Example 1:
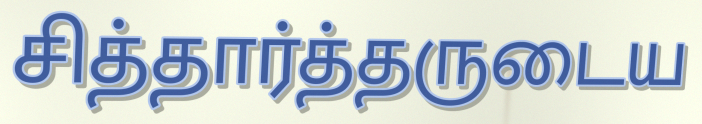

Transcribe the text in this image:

சித்தார்த்தருடைய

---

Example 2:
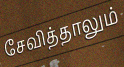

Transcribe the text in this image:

சேவித்தாலும்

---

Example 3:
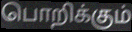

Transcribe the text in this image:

பொறிக்கும்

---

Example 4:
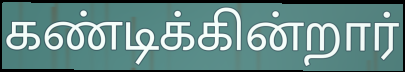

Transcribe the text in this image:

கண்டிக்கின்றார்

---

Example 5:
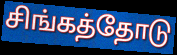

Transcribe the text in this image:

சிங்கத்தோடு